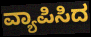
ವ್ಯಾಪಿಸಿದ